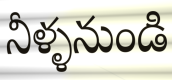
నీళ్ళనుండి